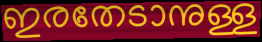
ഇരതേടാനുള്ള